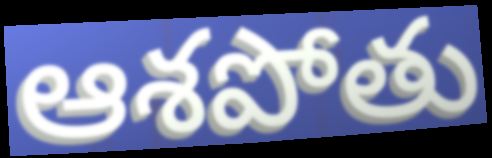
ఆశపోతు